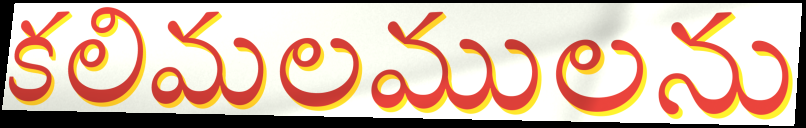
కలిమలములను